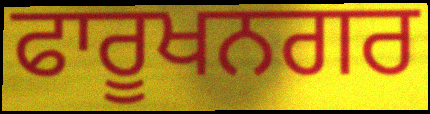
ਫਾਰੂਖਨਗਰ